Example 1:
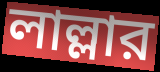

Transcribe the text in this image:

লাল্লার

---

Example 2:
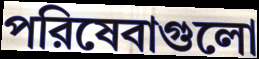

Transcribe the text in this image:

পরিষেবাগুলো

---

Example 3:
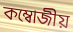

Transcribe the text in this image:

কম্বোজীয়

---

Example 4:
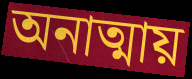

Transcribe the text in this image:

অনাত্মায়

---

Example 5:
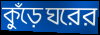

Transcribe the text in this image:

কুঁড়েঘরের